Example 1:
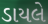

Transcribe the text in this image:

ડાયલે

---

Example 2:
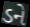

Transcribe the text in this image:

ડને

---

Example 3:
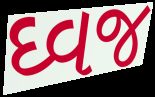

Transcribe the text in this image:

ઘ્વજ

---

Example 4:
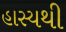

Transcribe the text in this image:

હાસ્યથી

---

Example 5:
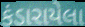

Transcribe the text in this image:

કંડારાયેલા